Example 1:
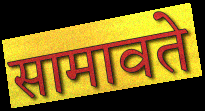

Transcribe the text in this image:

सामावते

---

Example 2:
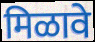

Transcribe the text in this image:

मिळावे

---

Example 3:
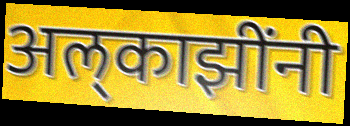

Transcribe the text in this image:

अल्काझींनी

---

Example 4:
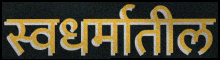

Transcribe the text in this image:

स्वधर्मातील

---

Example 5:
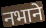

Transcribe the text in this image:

नभाने